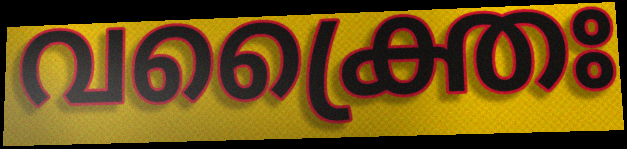
വക്ത്രൈഃ